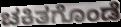
ಚಕಿತಗೊಂಡೆ